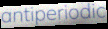
antiperiodic